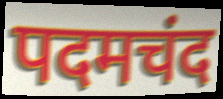
पदमचंद